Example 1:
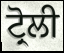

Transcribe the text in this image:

ਟ੍ਰੋਲੀ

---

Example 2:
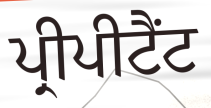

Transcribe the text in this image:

ਪ੍ਰੀਪੀਟੈਂਟ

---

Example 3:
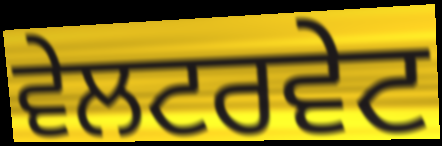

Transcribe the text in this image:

ਵੇਲਟਰਵੇਟ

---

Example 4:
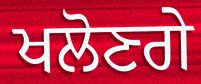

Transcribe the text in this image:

ਖਲੋਣਗੇ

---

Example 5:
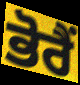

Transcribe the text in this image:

ਭੋਰੈਂ